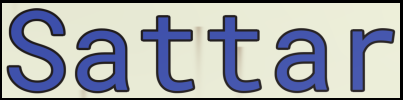
Sattar